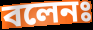
বলেনঃ